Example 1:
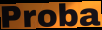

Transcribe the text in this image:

Proba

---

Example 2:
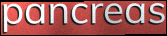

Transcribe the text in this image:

pancreas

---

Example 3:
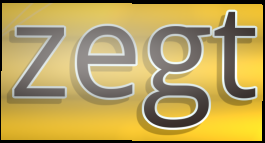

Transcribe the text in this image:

zegt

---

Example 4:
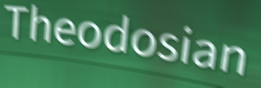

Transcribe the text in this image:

Theodosian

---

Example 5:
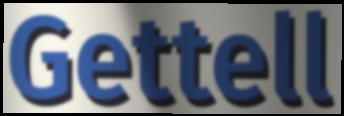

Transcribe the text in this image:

Gettell